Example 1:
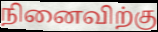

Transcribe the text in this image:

நினைவிற்கு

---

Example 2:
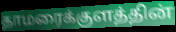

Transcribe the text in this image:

தாமரைக்குளத்தின்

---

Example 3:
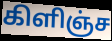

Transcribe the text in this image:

கிளிஞ்ச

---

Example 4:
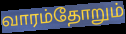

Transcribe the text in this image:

வாரம்தோறும்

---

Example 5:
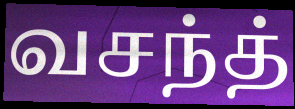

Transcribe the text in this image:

வசந்த்